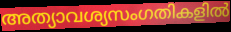
അത്യാവശ്യസംഗതികളിൽ